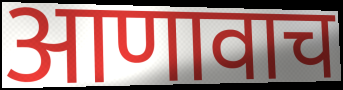
आणावाच